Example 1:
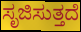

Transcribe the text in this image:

ಸೃಜಿಸುತ್ತದೆ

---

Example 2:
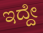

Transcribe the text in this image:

ಇದ್ದೇ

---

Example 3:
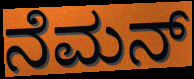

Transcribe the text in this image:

ನೆಮನ್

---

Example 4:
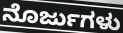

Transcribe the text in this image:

ನೊರ್ಜುಗಳು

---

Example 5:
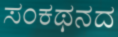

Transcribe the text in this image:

ಸಂಕಥನದ